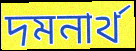
দমনার্থ